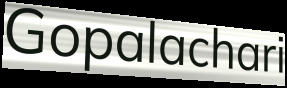
Gopalachari